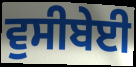
ਵੁਸੀਬੇਈ